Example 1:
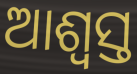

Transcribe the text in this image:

ଆଶ୍ଵସ୍ତ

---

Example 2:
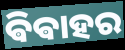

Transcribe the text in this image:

ଵିଵାହର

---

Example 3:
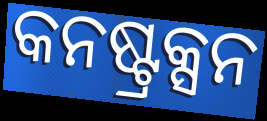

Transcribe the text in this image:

କନଷ୍ଟ୍ରକ୍ସନ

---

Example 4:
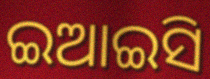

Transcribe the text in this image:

ଇଆଇସି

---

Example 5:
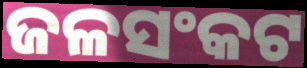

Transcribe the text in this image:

ଜଳସଂକଟ